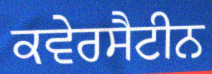
ਕਵੇਰਸੈਟੀਨ